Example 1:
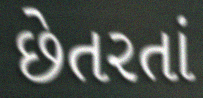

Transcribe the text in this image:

છેતરતાં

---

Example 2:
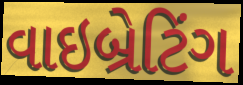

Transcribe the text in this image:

વાઇબ્રેટિંગ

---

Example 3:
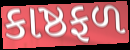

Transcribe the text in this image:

કાષ્ઠફળ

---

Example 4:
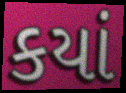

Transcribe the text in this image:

કયાં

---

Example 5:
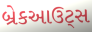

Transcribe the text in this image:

બ્રેકઆઉટ્સ